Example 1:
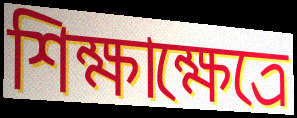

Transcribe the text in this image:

শিক্ষাক্ষেত্রে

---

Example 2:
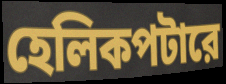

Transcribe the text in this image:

হেলিকপটারে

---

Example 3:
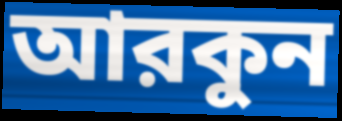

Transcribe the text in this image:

আরকুন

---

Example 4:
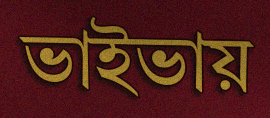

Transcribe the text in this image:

ভাইভায়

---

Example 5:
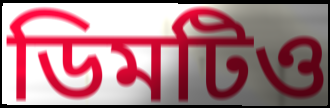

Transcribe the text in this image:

ডিমটিও